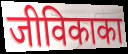
जीविकाका